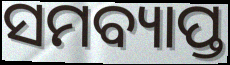
ସମବ୍ୟାପ୍ତ